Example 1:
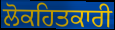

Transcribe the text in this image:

ਲੋਕਹਿਤਕਾਰੀ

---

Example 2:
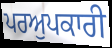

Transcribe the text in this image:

ਪਰਅੁਪਕਾਰੀ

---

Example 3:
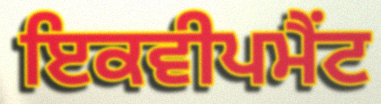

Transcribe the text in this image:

ਇਕਵੀਪਮੈਂਟ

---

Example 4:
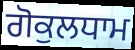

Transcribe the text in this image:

ਗੋਕੁਲਧਾਮ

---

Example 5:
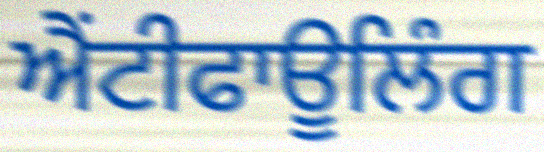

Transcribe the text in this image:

ਐਂਟੀਫਾਊਲਿੰਗ